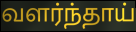
வளர்ந்தாய்